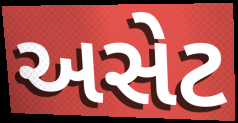
અસેટ